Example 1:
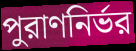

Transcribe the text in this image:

পুরাণনির্ভর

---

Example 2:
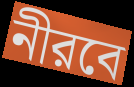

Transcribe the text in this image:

নীরবে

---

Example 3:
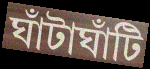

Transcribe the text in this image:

ঘাঁটাঘাঁটি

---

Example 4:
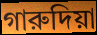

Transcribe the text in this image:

গারুদিয়া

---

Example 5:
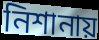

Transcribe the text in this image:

নিশানায়